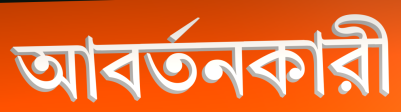
আবর্তনকারী